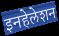
इनहेलेशन